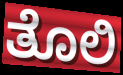
ತೊಲಿ